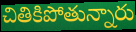
చితికిపోతున్నారు